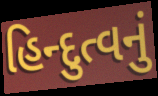
હિન્દુત્વનું